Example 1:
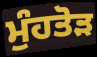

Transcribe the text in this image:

ਮੁੰਹਤੋੜ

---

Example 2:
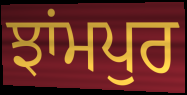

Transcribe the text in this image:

ਝਾਂਮਪੁਰ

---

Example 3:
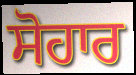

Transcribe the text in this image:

ਸੋਹਾਰ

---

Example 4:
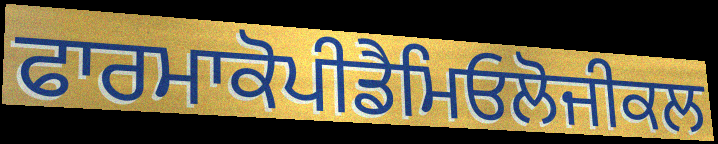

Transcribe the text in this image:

ਫਾਰਮਾਕੋਪੀਡੈਮਿਓਲੋਜੀਕਲ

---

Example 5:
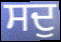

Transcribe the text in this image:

ਸਦੁ